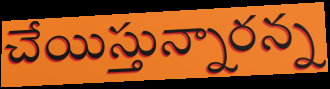
చేయిస్తున్నారన్న